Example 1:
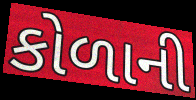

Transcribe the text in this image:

કોળાની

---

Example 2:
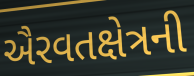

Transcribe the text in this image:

ઐરવતક્ષેત્રની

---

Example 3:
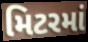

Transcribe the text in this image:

મિટરમાં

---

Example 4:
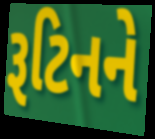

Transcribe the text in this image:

રૂટિનને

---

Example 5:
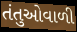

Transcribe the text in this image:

તંતુઓવાળી